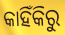
କାହିଁକିରୁ